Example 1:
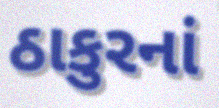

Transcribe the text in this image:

ઠાકુરનાં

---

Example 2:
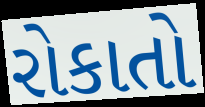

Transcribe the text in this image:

રોકાતો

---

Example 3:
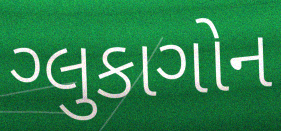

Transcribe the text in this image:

ગ્લુકાગોન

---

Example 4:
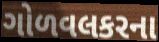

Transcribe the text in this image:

ગોળવલકરના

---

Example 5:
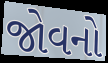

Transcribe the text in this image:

જોવનો